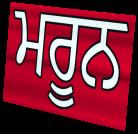
ਮਰੂਨ